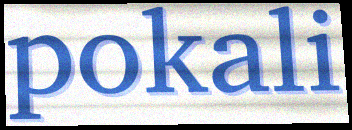
pokali